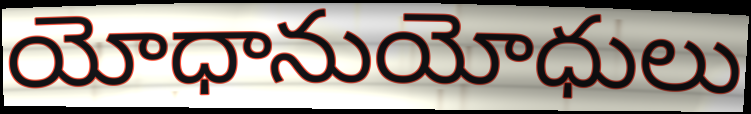
యోధానుయోధులు